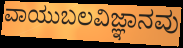
ವಾಯುಬಲವಿಜ್ಞಾನವು